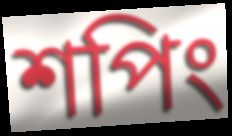
শপিং